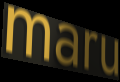
maru